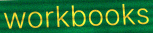
workbooks